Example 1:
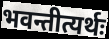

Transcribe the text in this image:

भवन्तीत्यर्थः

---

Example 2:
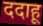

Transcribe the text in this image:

ददाहू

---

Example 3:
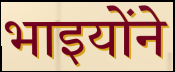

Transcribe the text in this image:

भाइयोंने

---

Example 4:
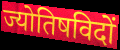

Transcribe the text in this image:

ज्योतिषविदों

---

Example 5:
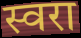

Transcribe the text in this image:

स्‍वरा